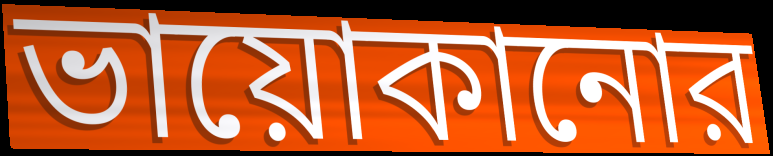
ভায়োকানোর